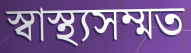
স্বাস্থ্যসম্মত